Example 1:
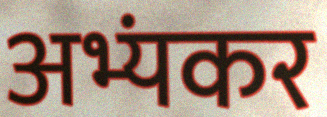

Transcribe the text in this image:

अभ्यंकर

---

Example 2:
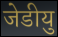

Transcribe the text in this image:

जेडीयु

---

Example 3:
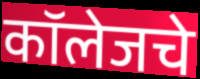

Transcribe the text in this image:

कॉलेजचे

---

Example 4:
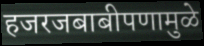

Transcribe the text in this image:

हजरजबाबीपणामुळे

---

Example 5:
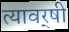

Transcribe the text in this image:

त्यावर्षी